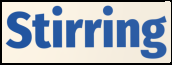
Stirring